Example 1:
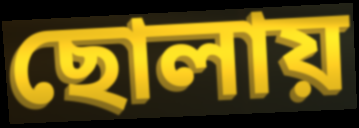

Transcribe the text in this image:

ছোলায়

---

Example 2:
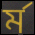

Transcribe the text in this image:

র্ম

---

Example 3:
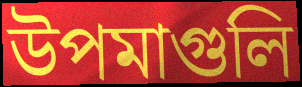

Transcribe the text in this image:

উপমাগুলি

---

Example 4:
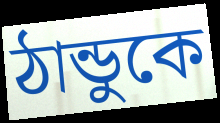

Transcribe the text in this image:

ঠান্ডুকে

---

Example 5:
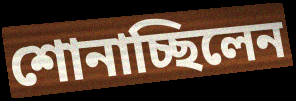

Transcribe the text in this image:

শোনাচ্ছিলেন